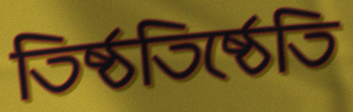
তিষ্ঠতিষ্ঠেতি